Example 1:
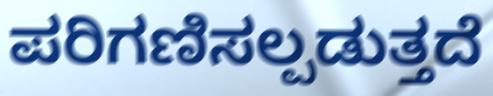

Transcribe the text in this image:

ಪರಿಗಣಿಸಲ್ಪಡುತ್ತದೆ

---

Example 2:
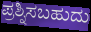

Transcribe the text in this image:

ಪ್ರಶ್ನಿಸಬಹುದು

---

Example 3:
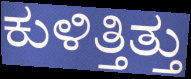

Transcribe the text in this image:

ಕುಳಿತ್ತಿತ್ತು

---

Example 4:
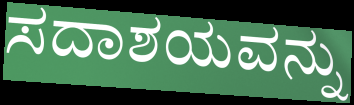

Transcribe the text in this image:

ಸದಾಶಯವನ್ನು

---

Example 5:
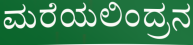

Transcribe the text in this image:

ಮರೆಯಲಿಂದ್ರನ